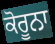
ਕੋਰੂਨਾ